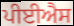
ਪੀਈਐਸ